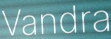
Vandra